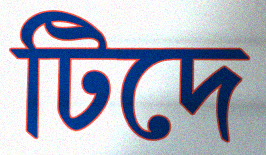
টিদে